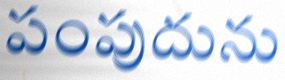
పంపుదును